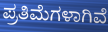
ಪ್ರತಿಮೆಗಳಾಗಿವೆ